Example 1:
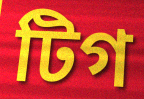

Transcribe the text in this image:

টিগ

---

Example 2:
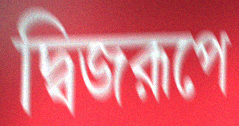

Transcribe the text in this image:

দ্বিজরূপে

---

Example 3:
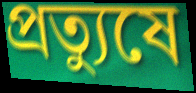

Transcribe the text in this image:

প্রত্যুষে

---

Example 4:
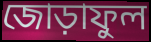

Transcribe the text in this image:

জোড়াফুল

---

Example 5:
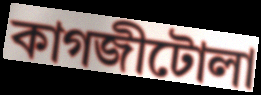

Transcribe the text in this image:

কাগজীটোলা